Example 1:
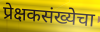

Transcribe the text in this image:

प्रेक्षकसंख्येचा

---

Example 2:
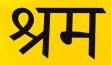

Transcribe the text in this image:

श्रम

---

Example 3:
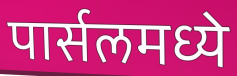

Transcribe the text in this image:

पार्सलमध्ये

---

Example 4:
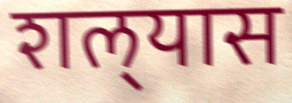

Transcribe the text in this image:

शल्यास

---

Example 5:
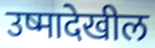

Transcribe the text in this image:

उष्मादेखील